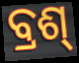
ବ୍ରଶ୍